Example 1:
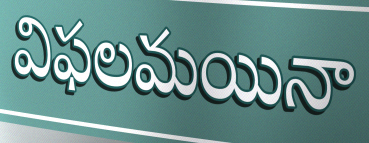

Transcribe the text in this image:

విఫలమయినా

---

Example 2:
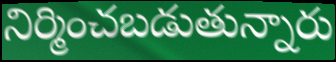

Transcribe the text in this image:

నిర్మించబడుతున్నారు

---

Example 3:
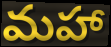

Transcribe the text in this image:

మహా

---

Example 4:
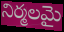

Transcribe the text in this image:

నిర్మలమై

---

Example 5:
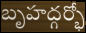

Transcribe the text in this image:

బృహద్గర్భో